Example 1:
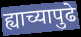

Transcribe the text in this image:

ह्याच्यापुढे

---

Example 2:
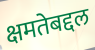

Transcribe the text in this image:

क्षमतेबद्दल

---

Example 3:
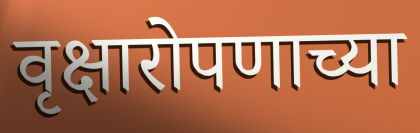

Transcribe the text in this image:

वृक्षारोपणाच्या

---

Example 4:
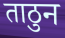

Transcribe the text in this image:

ताठुन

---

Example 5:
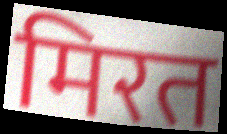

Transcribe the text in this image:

मिरत